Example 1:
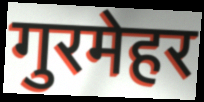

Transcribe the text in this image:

गुरमेहर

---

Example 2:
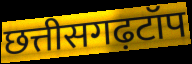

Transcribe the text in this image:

छत्तीसगढ़टॉप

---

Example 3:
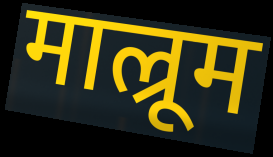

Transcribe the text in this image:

माल्रूम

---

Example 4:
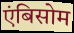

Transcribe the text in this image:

एंबिसोम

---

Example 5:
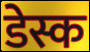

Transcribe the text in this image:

डेस्क